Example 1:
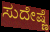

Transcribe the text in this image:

ಸುದೇಷ್ಣೆ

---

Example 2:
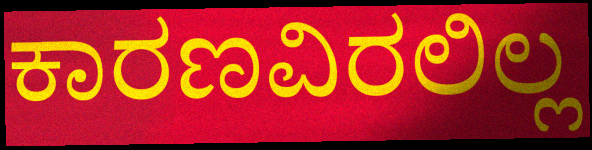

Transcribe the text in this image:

ಕಾರಣವಿರಲಿಲ್ಲ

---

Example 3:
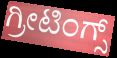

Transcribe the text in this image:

ಗ್ರೀಟಿಂಗ್ಸ್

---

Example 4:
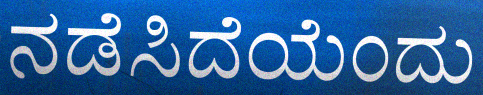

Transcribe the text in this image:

ನಡೆಸಿದೆಯೆಂದು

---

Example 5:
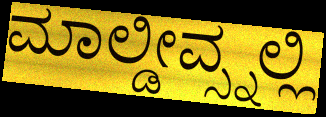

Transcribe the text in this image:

ಮಾಲ್ಡೀವ್ಸ್ನಲ್ಲಿ